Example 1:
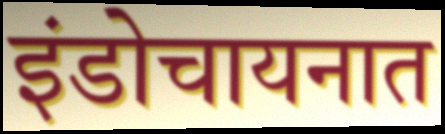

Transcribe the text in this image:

इंडोचायनात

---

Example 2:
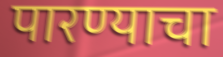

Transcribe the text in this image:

पारण्याचा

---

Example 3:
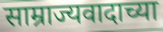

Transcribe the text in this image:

साम्राज्यवादाच्या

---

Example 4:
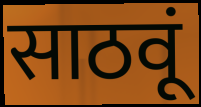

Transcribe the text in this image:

साठवूं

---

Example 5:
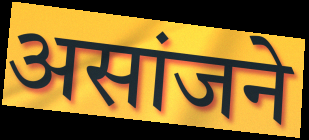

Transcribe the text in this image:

असांजने